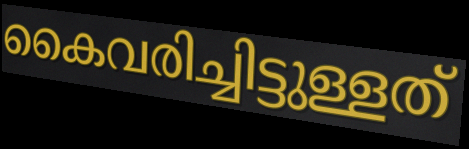
കൈവരിച്ചിട്ടുള്ളത്